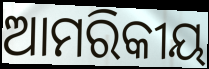
ଆମରିକୀୟ